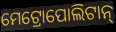
ମେଟ୍ରୋପୋଲିଟାନ୍